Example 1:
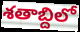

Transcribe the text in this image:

శతాబ్దిలో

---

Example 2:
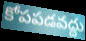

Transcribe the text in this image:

కోపపడవద్దు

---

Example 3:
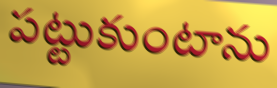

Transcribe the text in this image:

పట్టుకుంటాను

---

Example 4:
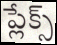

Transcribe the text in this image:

ప్లేక్స్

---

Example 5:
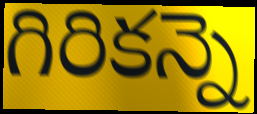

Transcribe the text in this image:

గిరికన్నె